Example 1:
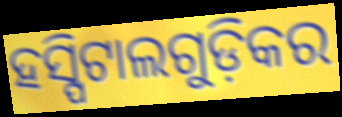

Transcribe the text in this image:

ହସ୍ପିଟାଲଗୁଡ଼ିକର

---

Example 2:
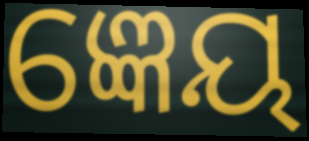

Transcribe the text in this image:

ଜ୍ଞେୟ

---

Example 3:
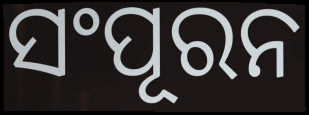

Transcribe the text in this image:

ସଂପୂରନ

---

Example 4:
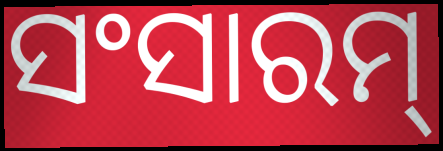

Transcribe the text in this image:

ସଂସାରମ୍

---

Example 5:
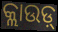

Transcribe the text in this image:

କ୍ଲାଉଡ଼୍